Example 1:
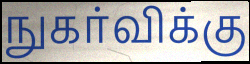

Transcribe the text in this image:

நுகர்விக்கு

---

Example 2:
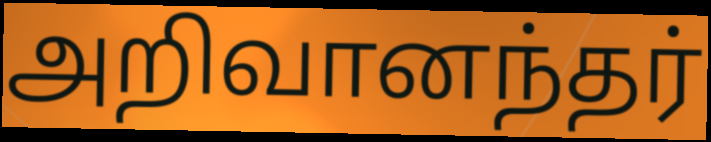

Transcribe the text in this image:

அறிவானந்தர்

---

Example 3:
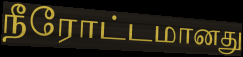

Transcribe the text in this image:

நீரோட்டமானது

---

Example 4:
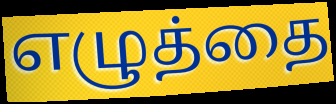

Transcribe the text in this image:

எழுத்தை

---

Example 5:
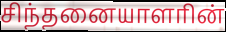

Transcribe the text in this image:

சிந்தனையாளரின்